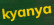
kyanya